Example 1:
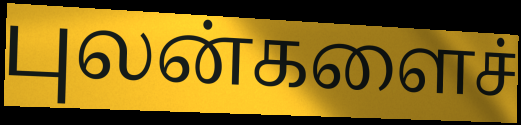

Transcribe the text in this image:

புலன்களைச்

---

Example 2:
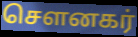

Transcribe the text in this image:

சௌனகர்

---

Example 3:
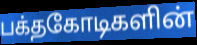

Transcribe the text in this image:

பக்தகோடிகளின்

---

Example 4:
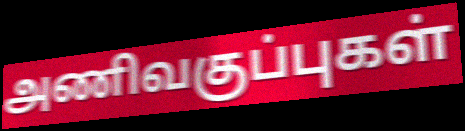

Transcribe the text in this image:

அணிவகுப்புகள்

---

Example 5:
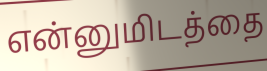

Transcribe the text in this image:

என்னுமிடத்தை